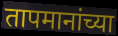
तापमानांच्या